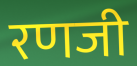
रणजी